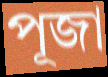
পূজা